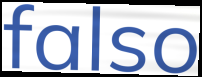
falso